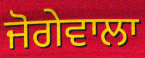
ਜੋਗੇਵਾਲਾ